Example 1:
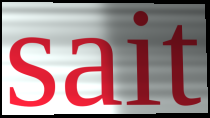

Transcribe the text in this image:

sait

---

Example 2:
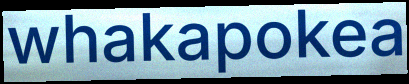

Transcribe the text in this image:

whakapokea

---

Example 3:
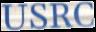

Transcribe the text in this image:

USRC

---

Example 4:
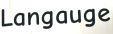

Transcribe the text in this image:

Langauge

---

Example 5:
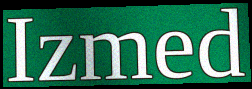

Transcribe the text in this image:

Izmed